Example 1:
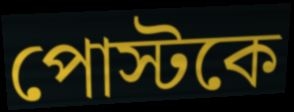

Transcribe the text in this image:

পোস্টকে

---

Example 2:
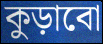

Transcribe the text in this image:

কুড়াবো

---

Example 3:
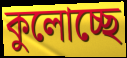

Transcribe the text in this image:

কুলোচ্ছে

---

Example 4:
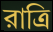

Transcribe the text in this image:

রাত্রি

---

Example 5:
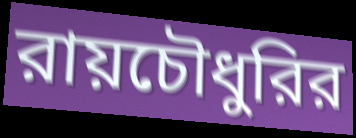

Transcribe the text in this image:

রায়চৌধুরির